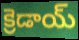
క్రెడాయ్